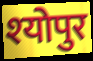
श्‍योपुर